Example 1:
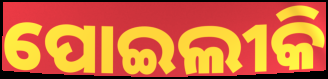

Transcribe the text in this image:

ପୋଇଲୀକି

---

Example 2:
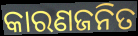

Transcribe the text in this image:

କାରଣଜନିତ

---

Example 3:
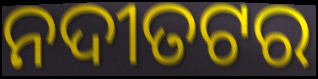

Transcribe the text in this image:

ନଦୀତଟର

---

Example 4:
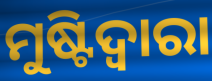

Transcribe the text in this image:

ମୁଷ୍ଟିଦ୍ୱାରା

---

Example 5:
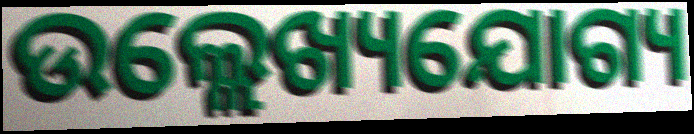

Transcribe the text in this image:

ଉଲ୍ଲେଖ୍ୟଯୋଗ୍ୟ